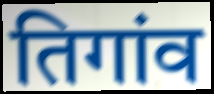
तिगांव